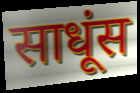
साधूंस